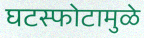
घटस्फोटामुळे